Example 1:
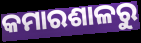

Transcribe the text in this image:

କମାରଶାଳରୁ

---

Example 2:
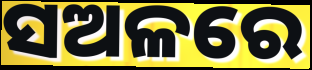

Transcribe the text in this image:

ସଅଳରେ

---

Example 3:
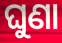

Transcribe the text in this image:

ଘୁଣା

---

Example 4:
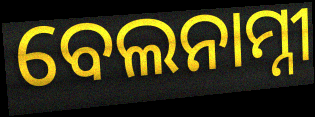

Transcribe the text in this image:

ବେଲନାମ୍ନୀ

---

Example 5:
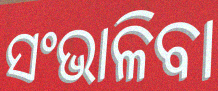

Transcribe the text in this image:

ସଂଭାଳିବା